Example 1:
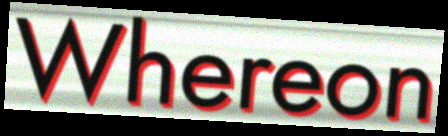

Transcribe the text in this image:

Whereon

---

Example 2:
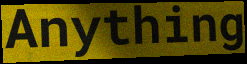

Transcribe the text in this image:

Anything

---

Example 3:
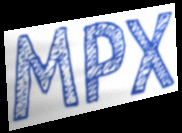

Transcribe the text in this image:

MPX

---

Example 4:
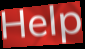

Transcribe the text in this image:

Help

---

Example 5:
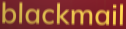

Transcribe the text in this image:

blackmail